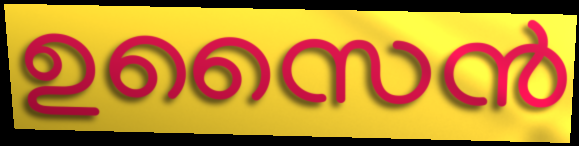
ഉസൈൻ